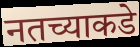
नतच्याकडे